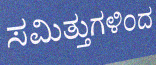
ಸಮಿತ್ತುಗಳಿಂದ